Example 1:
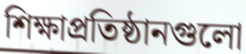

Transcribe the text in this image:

শিক্ষাপ্রতিষ্ঠানগুলো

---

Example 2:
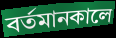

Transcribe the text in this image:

বর্তমানকালে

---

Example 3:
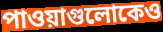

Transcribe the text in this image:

পাওয়াগুলোকেও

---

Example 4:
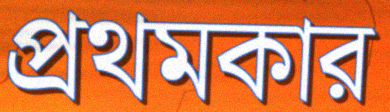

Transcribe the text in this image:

প্রথমকার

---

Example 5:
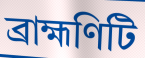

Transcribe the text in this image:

ব্রাহ্মণিটি